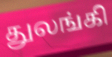
துலங்கி